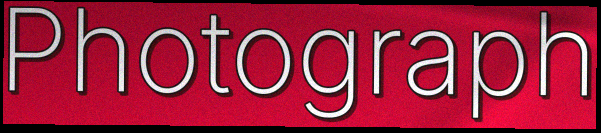
Photograph